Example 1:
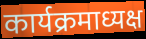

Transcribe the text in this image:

कार्यक्रमाध्यक्ष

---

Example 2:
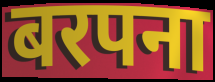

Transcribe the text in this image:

बरपना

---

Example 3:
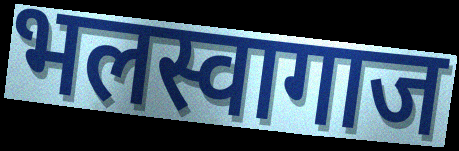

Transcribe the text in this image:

भलस्वागाज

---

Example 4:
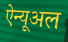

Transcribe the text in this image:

ऐन्यूअल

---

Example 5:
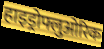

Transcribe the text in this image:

हाइड्रोफ्लुओरिक